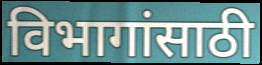
विभागांसाठी